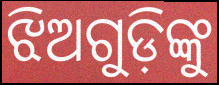
ଝିଅଗୁଡ଼ିଙ୍କୁ